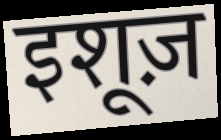
इशूज़